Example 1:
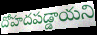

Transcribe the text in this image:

దోహదపడ్డాయని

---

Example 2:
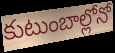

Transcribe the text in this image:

కుటుంబాల్లోనో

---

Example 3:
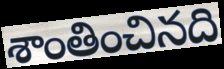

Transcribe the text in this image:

శాంతించినది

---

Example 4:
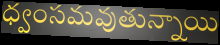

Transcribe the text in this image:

ధ్వంసమవుతున్నాయి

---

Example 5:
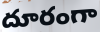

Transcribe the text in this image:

దూరంగా